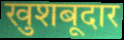
खुशबूदार